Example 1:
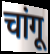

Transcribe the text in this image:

चांगू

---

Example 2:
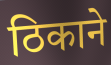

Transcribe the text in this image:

ठिकाने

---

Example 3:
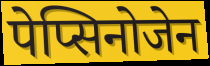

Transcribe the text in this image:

पेप्सिनोजेन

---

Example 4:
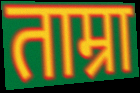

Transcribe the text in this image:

ताम्रा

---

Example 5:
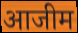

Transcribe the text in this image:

आजीम